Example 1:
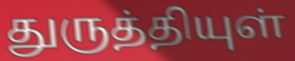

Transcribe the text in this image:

துருத்தியுள்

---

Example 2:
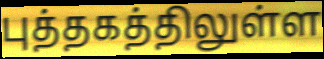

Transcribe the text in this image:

புத்தகத்திலுள்ள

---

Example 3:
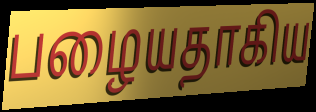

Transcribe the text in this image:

பழையதாகிய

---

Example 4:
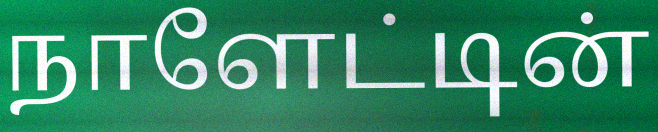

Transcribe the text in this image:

நாளேட்டின்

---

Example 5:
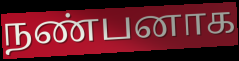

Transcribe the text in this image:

நண்பனாக